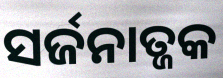
ସର୍ଜନାତ୍ଜକ